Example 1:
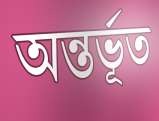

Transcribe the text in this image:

অন্তর্ভূত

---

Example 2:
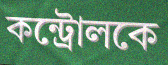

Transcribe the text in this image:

কন্ট্রোলকে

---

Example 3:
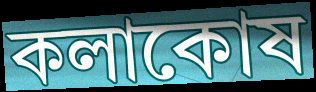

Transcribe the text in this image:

কলাকোষ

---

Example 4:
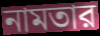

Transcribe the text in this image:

নামতার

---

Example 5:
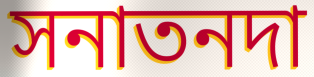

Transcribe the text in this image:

সনাতনদা